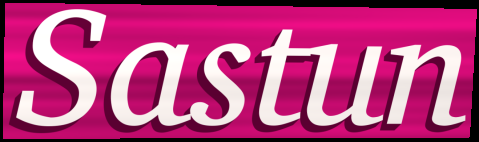
Sastun